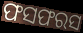
ଫସଫରସ